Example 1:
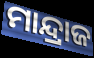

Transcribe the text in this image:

ମାନ୍ଦ୍ରାଜ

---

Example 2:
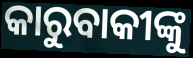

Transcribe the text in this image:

କାରୁବାକୀଙ୍କୁ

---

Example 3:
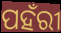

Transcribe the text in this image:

ପହଁରୀ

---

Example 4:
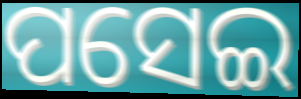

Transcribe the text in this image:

ପସେଇ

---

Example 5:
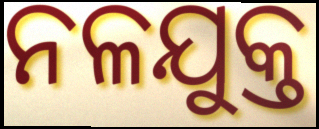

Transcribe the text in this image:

ନଳଯୁକ୍ତ